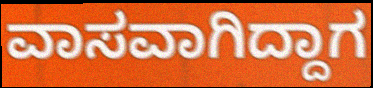
ವಾಸವಾಗಿದ್ದಾಗ